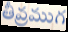
తీవ్రముగ